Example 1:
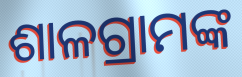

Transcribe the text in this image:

ଶାଳଗ୍ରାମଙ୍କ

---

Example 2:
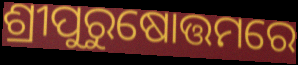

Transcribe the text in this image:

ଶ୍ରୀପୁରୁଷୋତ୍ତମରେ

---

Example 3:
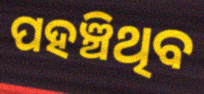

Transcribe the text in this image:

ପହଞ୍ଚିଥିବ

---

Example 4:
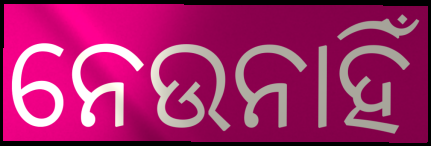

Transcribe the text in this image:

ନେଉନାହିଁ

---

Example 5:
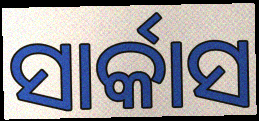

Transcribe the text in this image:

ସାର୍କାସ